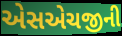
એસએચજીની